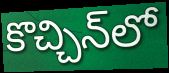
కొచ్చిన్‌లో